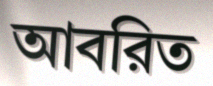
আবরিত